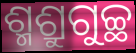
ଶ୍ମଶ୍ରୁଗୁଚ୍ଛ